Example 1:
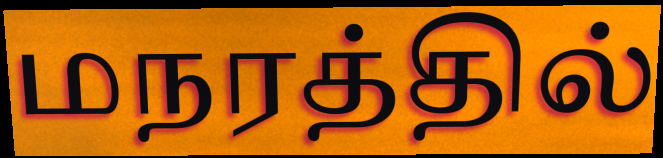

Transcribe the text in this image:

மநரத்தில்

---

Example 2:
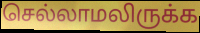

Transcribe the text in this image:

செல்லாமலிருக்க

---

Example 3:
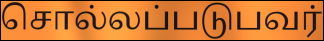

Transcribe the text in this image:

சொல்லப்படுபவர்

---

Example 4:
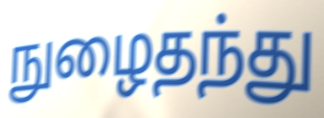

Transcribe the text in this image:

நுழைதந்து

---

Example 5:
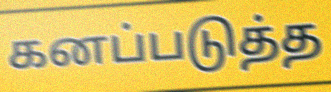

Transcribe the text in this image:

கனப்படுத்த